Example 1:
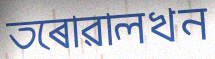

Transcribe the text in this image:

তৰোৱালখন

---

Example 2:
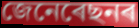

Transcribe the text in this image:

জেনেৰেছনৰ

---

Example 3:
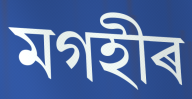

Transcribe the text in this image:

মগহীৰ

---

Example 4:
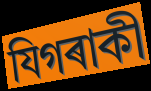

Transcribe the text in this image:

যিগৰাকী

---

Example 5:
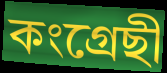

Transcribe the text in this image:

কংগ্ৰেছী